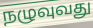
நழுவுவது